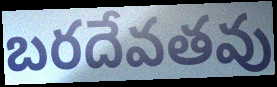
బరదేవతవు